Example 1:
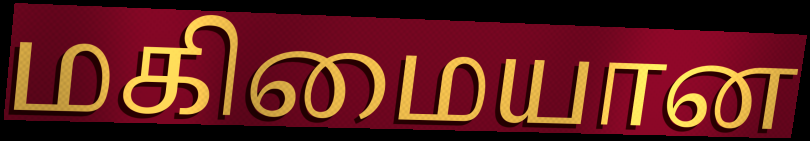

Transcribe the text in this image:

மகிமையான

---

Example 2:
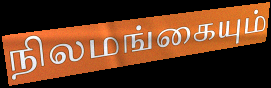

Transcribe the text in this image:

நிலமங்கையும்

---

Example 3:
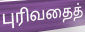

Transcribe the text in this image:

புரிவதைத்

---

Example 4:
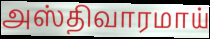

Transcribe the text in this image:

அஸ்திவாரமாய்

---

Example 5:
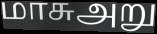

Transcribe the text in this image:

மாசுஅறு